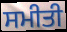
ਸਮੀਤੀ